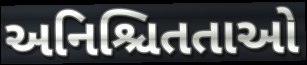
અનિશ્ચિતતાઓ